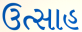
ઉત્સાહ